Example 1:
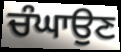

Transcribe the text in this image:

ਚੰਘਾਉਣ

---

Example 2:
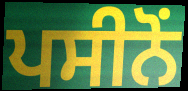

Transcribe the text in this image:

ਪਸੀਨੋਂ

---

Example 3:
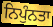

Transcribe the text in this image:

ਨਿਪੁੰਨਤਾ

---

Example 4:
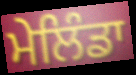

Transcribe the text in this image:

ਮੇਲਿੰਡਾ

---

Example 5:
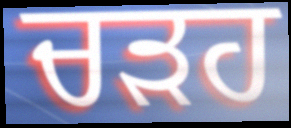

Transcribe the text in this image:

ਚੜਹ